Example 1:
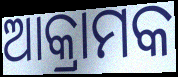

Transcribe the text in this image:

ଆକ୍ରାମକ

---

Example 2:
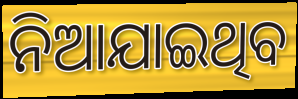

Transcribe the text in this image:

ନିଆଯାଇଥିବ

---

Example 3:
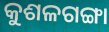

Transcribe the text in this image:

କୁଶଳଗଙ୍ଗା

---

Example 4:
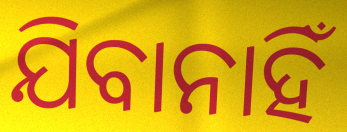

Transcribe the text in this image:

ଯିବାନାହିଁ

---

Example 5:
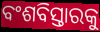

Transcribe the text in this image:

ବଂଶବିସ୍ତାରକୁ